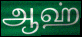
ஆஹ்